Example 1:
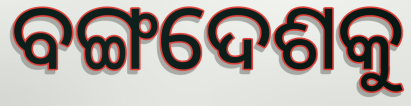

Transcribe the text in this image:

ବଙ୍ଗଦେଶକୁ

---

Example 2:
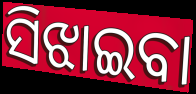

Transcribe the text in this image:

ସିଝାଇବା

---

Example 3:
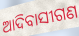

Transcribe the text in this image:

ଆଦିବାସୀଗଣ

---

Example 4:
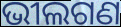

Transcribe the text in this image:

ଭୀଲଗଣ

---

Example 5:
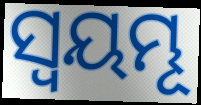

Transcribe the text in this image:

ସ୍ଵୟମ୍ଭୂ